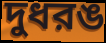
দুধরঙ